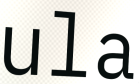
ula